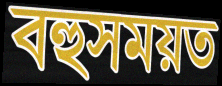
বহুসময়ত